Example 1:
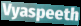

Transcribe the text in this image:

Vyaspeeth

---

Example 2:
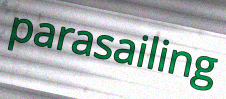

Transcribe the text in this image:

parasailing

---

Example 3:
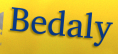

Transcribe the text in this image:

Bedaly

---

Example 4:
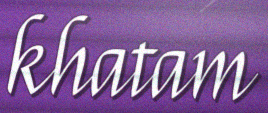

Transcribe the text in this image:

khatam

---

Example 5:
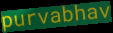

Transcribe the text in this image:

purvabhav